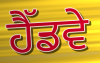
ਹੈੱਡਵੇ